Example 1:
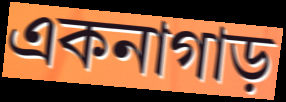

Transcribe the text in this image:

একনাগাড়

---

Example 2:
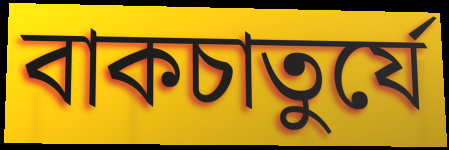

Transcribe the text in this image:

বাকচাতুর্যে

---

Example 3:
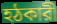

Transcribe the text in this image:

হঠকারী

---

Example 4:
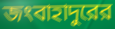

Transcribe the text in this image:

জংবাহাদুরের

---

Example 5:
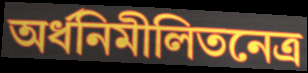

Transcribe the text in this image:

অর্ধনিমীলিতনেত্র